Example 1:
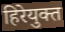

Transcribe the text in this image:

हिरेयुक्त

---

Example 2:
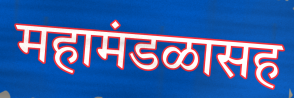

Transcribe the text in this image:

महामंडळासह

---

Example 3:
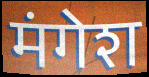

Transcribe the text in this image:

मंगेश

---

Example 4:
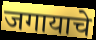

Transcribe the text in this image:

जगायाचे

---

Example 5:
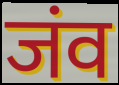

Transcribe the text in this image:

जंव